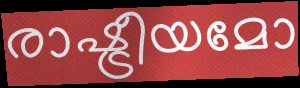
രാഷ്ട്രീയമോ